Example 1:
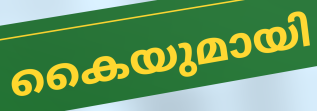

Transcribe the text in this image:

കൈയുമായി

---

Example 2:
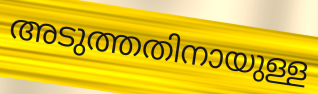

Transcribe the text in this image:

അടുത്തതിനായുള്ള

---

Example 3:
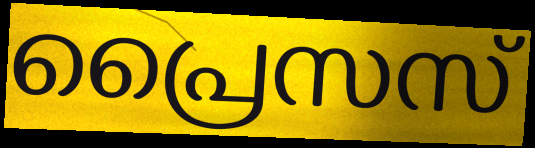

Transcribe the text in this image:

പ്രൈസസ്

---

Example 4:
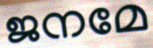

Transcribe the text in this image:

ജനമേ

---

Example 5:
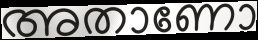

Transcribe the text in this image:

അതാണോ